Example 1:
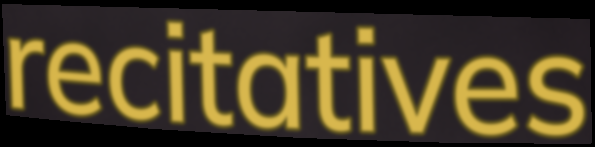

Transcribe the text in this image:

recitatives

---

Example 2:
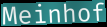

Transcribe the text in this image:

Meinhof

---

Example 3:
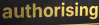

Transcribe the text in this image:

authorising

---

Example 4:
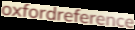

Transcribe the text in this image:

oxfordreference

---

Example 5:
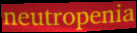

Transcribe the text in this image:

neutropenia